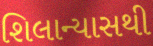
શિલાન્યાસથી